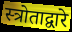
स्त्रोताद्वारे